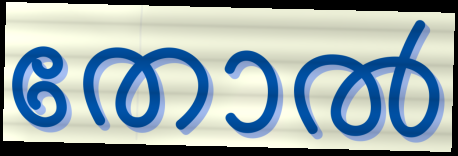
തോൽ